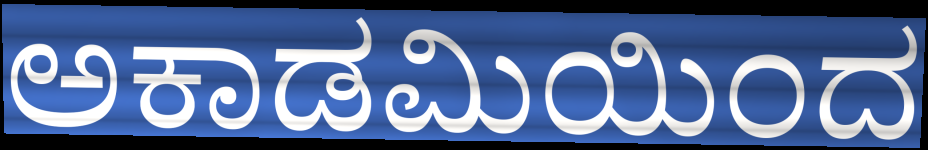
ಅಕಾಡಮಿಯಿಂದ